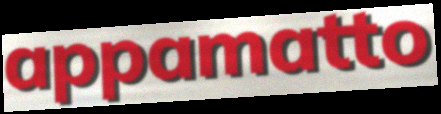
appamatto